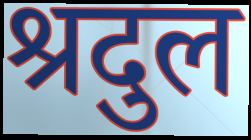
श्रदुल